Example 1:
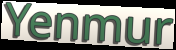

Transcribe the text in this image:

Yenmur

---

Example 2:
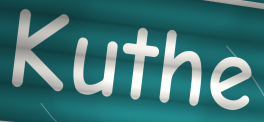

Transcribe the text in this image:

Kuthe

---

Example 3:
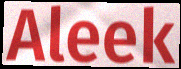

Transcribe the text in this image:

Aleek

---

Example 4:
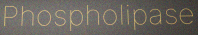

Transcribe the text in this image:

Phospholipase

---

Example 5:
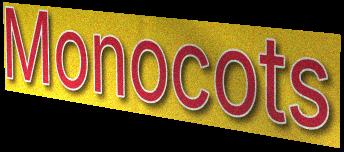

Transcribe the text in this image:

Monocots